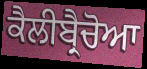
ਕੈਲੀਬ੍ਰੈਚੋਆ